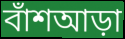
বাঁশআড়া